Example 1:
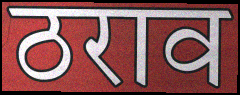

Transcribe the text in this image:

ठराव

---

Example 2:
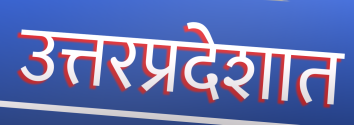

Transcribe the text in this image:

उत्तरप्रदेशात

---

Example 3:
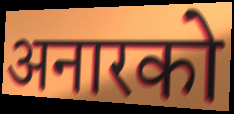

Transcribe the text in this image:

अनारको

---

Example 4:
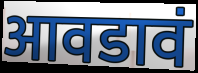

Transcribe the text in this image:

आवडावं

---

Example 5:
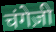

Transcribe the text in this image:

चंगेज़ी